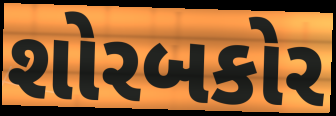
શોરબકોર